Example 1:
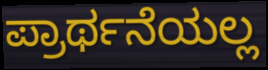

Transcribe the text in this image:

ಪ್ರಾರ್ಥನೆಯಲ್ಲ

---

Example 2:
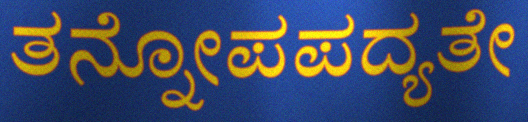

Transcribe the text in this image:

ತನ್ನೋಪಪದ್ಯತೇ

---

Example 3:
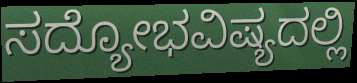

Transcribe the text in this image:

ಸದ್ಯೋಭವಿಷ್ಯದಲ್ಲಿ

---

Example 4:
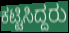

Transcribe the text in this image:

ಕಟ್ಟಿಸಿದ್ದರು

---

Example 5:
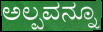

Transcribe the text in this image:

ಅಲ್ಪವನ್ನೂ